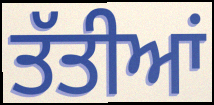
ਤੱਤੀਆਂ